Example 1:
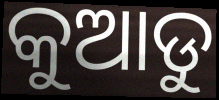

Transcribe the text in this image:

କୁଆଡୁ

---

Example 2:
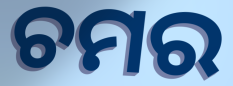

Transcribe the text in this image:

ଚମର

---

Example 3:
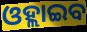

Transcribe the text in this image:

ଓହ୍ଲାଇବ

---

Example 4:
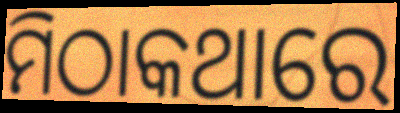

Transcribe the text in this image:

ମିଠାକଥାରେ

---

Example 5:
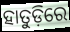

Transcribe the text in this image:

ହାତୁଡ଼ିରେ